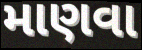
માણવા